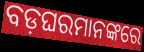
ବଡ଼ଘରମାନଙ୍କରେ